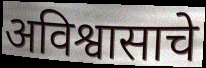
अविश्वासाचे